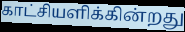
காட்சியளிக்கின்றது